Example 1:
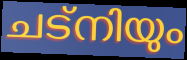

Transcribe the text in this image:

ചട്നിയും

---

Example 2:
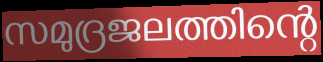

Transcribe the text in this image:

സമുദ്രജലത്തിന്റെ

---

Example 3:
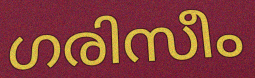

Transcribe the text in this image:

ഗരിസീം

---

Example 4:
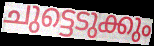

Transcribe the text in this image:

ചുട്ടെടുക്കും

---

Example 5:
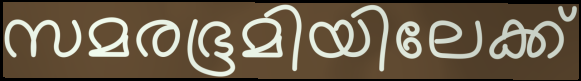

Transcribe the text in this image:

സമരഭൂമിയിലേക്ക്